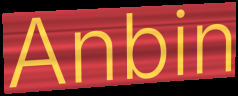
Anbin